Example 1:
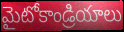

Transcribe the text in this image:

మైటోకాండ్రియాలు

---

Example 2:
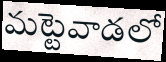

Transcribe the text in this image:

మట్టెవాడలో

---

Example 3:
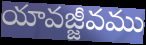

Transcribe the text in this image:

యావజ్జీవము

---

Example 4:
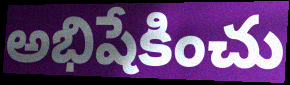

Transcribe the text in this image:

అభిషేకించు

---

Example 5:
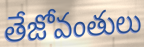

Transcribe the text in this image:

తేజోవంతులు